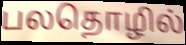
பலதொழில்